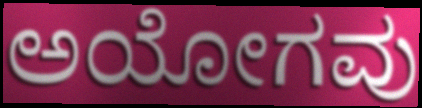
ಅಯೋಗವು